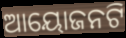
ଆୟୋଜନଟି